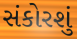
સંકોરશું